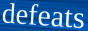
defeats